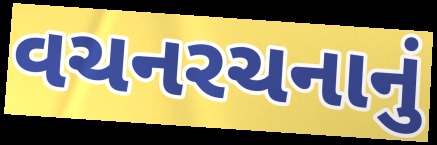
વચનરચનાનું